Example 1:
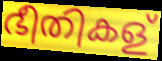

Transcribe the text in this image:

ഭീതികള്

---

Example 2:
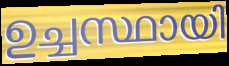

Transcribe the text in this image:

ഉച്ചസ്ഥായി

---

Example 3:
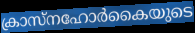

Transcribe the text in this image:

ക്രാസ്നഹോർകൈയുടെ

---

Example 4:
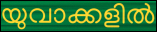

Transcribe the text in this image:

യുവാക്കളിൽ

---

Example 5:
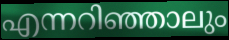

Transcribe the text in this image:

എന്നറിഞ്ഞാലും